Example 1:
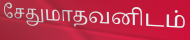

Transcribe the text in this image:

சேதுமாதவனிடம்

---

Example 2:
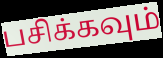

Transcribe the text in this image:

பசிக்கவும்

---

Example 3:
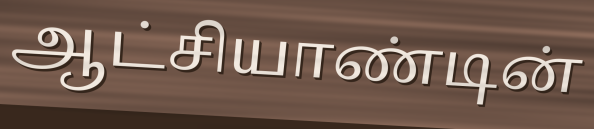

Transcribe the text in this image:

ஆட்சியாண்டின்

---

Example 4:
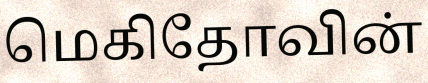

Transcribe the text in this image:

மெகிதோவின்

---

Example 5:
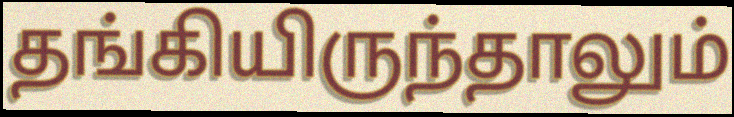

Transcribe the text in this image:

தங்கியிருந்தாலும்